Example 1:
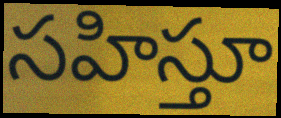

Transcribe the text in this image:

సహిస్తూ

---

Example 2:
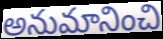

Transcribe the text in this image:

అనుమానించి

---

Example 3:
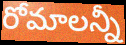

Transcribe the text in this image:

రోమాలన్నీ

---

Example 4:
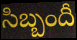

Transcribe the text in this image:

సిబ్బందీ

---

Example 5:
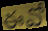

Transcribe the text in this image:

ఈవో